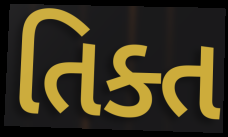
તિક્ત